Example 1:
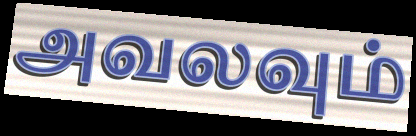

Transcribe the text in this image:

அவலவும்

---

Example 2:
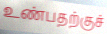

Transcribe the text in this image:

உண்பதற்குச்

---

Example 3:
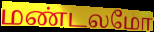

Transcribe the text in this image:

மண்டலமோ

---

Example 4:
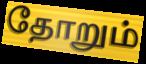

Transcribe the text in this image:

தோறும்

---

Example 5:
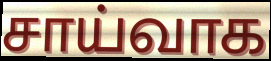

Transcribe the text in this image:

சாய்வாக